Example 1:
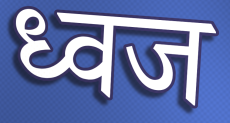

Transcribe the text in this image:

ध्वज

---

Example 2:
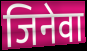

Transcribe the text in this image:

जिनेवा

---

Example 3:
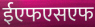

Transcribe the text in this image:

ईएफएसएफ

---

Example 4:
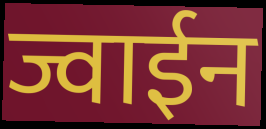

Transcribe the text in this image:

ज्वाईन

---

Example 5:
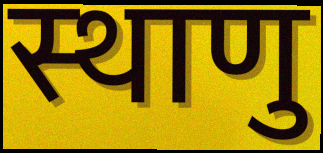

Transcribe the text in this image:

स्थाणु